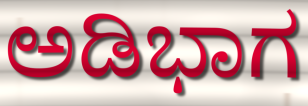
ಅಡಿಭಾಗ